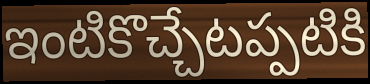
ఇంటికొచ్చేటప్పటికి